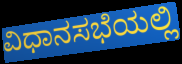
ವಿಧಾನಸಭೆಯಲ್ಲಿ